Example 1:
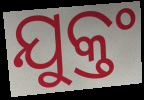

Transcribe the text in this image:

ଯୁକ୍ତଂ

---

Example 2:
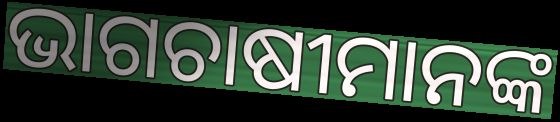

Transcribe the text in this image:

ଭାଗଚାଷୀମାନଙ୍କ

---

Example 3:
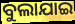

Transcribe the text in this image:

ବୁଲାଯାଇ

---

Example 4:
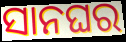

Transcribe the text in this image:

ସାନଘର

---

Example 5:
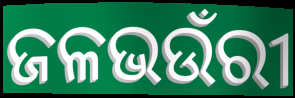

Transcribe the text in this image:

ଜଳଭଉଁରୀ